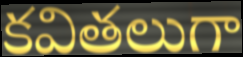
కవితలుగా